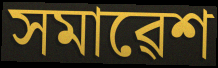
সমাৱেশ